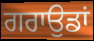
ਗਰਾਉਡਾਂ